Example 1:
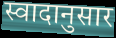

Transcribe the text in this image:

स्वादानुसार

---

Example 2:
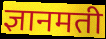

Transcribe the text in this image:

ज्ञानमती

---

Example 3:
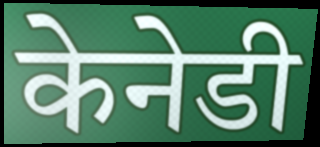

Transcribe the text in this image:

केनेडी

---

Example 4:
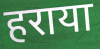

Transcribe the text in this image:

हराया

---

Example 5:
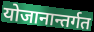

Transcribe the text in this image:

योजानान्तर्गत